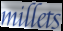
millets